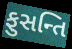
ફુસન્તિ